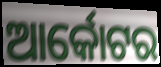
ଆର୍କୋଟର